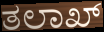
ತಲಾಖ್